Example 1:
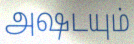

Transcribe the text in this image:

அஷடயும்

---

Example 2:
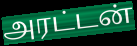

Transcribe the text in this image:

அரட்டன்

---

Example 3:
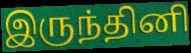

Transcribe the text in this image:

இருந்தினி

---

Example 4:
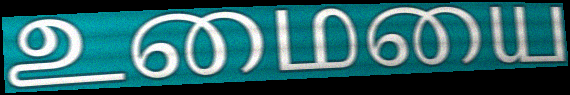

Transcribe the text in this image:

உமையை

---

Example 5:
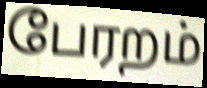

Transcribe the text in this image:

பேரறம்